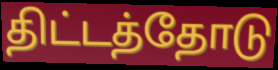
திட்டத்தோடு